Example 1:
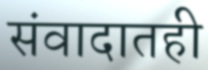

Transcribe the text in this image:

संवादातही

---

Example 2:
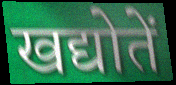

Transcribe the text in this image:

खद्योतें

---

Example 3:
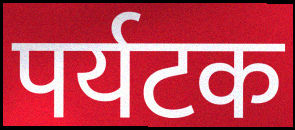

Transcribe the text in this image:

पर्यटक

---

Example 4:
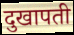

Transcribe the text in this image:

दुखापती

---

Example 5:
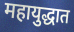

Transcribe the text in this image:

महायुद्धात